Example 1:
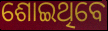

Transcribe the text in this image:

ଶୋଇଥିବେ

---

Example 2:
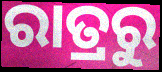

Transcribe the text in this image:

ରାତ୍ରରୁ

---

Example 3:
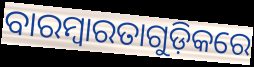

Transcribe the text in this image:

ବାରମ୍ବାରତାଗୁଡ଼ିକରେ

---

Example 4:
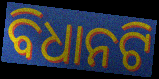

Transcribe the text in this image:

ବିଧାନଟି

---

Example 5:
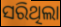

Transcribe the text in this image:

ସରିଥିଲା